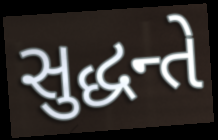
સુદ્ધન્તે